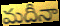
మదీనా